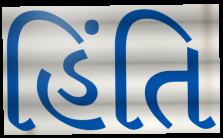
હિંતિ